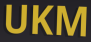
UKM